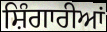
ਸ਼ਿੰਗਾਰੀਆਂ